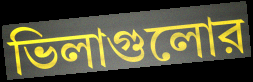
ভিলাগুলোর